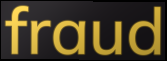
fraud